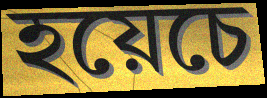
হয়েচে